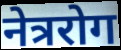
नेत्ररोग